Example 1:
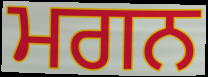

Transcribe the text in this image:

ਮਗਨ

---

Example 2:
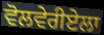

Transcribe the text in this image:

ਵੋਲਵੇਰੀਏਲਾ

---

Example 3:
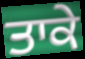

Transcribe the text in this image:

ਤਾਕੇ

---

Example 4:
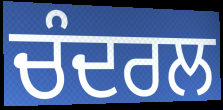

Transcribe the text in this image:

ਚੰਦਰਲ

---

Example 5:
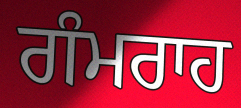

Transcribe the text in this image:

ਗੰਮਰਾਹ